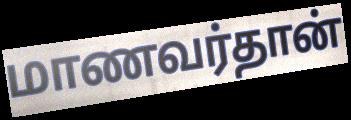
மாணவர்தான்